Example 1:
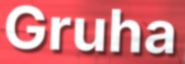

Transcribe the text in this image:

Gruha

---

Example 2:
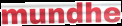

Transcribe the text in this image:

mundhe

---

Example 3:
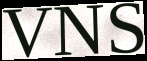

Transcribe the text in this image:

VNS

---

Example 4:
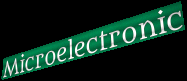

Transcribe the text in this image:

Microelectronic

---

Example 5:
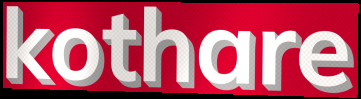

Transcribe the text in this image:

kothare